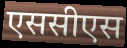
एससीएस